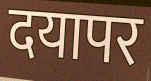
दयापर